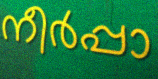
നീർപ്പാ